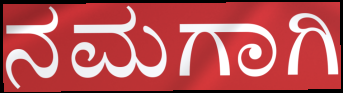
ನಮಗಾಗಿ